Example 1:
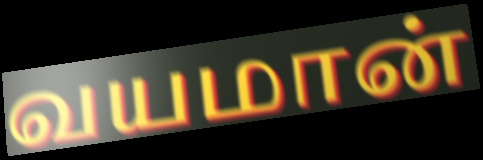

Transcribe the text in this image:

வயமான்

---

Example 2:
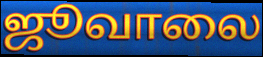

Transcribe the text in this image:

ஜூவாலை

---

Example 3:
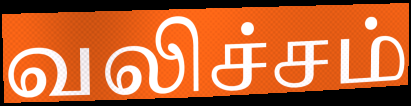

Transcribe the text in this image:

வலிச்சம்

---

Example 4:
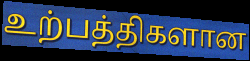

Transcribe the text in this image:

உற்பத்திகளான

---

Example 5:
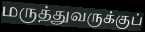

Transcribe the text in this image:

மருத்துவருக்குப்